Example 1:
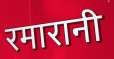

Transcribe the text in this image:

रमारानी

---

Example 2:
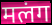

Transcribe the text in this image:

मलंग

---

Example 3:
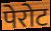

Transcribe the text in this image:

पेरोट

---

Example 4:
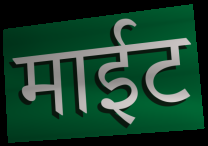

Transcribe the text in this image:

माईट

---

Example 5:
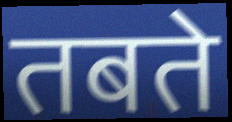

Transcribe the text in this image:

तबते